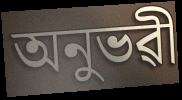
অনুভৱী